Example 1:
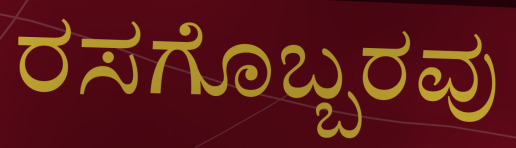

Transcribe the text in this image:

ರಸಗೊಬ್ಬರವು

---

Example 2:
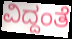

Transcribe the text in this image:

ವಿದ್ದಂತೆ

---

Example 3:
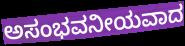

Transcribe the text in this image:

ಅಸಂಭವನೀಯವಾದ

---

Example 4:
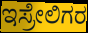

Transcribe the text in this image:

ಇಸ್ರೇಲಿಗರ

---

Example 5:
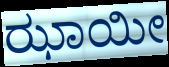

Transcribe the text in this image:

ಝಾಯೀ